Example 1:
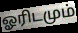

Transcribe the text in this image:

ஓரிடமும்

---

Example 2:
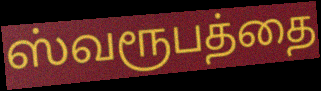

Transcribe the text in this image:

ஸ்வரூபத்தை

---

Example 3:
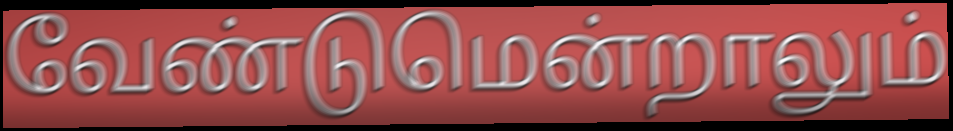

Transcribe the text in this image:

வேண்டுமென்றாலும்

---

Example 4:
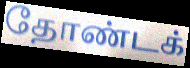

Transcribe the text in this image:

தோண்டக்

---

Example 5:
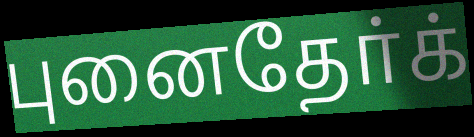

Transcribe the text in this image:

புனைதேர்க்